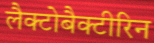
लैक्टोबैक्टीरिन